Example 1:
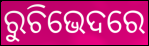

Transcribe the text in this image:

ରୁଚିଭେଦରେ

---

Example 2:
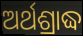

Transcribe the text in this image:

ଅର୍ଥଶ୍ରାଦ୍ଧ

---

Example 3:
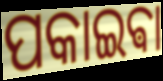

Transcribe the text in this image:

ପକାଇଵା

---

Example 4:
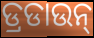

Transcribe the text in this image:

ଡ୍ରଡାଉନ୍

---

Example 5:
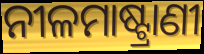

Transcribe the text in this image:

ନୀଳମାଷ୍ଟ୍ରାଣୀ